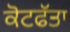
ਕੋਟਫੱਤਾ